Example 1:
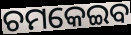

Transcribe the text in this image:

ଚମକେଇବ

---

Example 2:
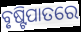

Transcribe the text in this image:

ବୃଷ୍ଟିପାତରେ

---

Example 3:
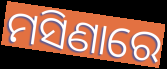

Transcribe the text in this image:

ମସିଣାରେ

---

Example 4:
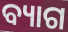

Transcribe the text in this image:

ବ୍ୟାଗ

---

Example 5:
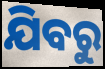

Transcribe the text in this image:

ଯିବରୁ